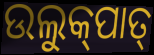
ଉଲୁକ୍‌ପାତ୍